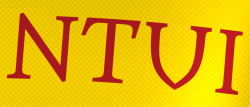
NTUI